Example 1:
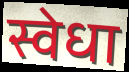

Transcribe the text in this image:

स्वेधा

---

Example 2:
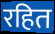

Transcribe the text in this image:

रहित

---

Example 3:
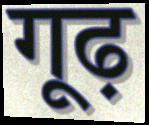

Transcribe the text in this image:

गूढ़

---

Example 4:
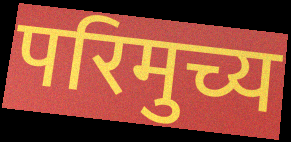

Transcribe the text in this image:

परिमुच्य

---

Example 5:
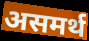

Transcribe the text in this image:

असमर्थ